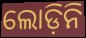
ଲୋଡ଼ିନି